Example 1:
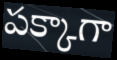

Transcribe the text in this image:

పక్కాగా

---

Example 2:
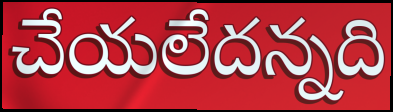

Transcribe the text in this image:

చేయలేదన్నది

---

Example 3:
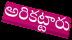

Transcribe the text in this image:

అరికట్టారు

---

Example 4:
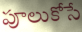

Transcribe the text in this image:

పూలుకోసే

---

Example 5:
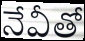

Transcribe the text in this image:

నేవీతో